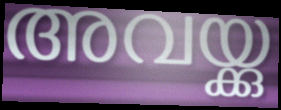
അവയ്ക്കു